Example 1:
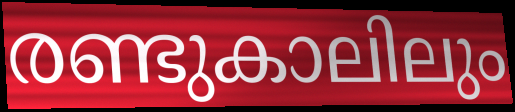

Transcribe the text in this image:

രണ്ടുകാലിലും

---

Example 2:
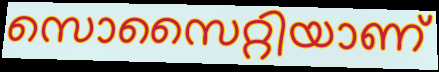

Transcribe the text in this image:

സൊസൈറ്റിയാണ്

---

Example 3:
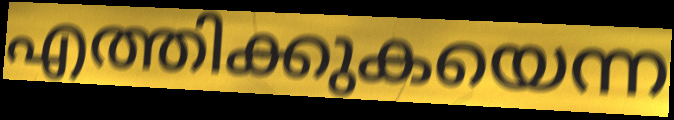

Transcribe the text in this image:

എത്തിക്കുകയെന്ന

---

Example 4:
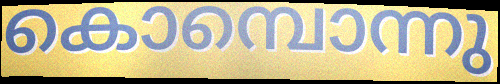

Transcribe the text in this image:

കൊമ്പൊന്നു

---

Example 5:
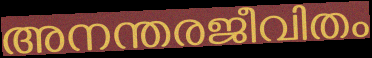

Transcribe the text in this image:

അനന്തരജീവിതം